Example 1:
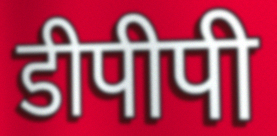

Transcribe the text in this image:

डीपीपी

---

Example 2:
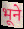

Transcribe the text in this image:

भूने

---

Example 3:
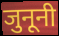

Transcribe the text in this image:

जुनूनी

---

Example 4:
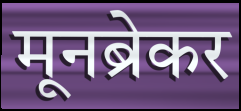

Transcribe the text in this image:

मूनब्रेकर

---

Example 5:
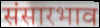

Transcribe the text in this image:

संसारभाव